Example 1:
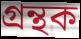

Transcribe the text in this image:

গ্ৰন্থক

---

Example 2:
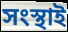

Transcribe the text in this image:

সংস্থাই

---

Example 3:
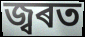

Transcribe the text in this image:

জ্বৰত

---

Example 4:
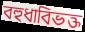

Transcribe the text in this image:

বহুধাবিভক্ত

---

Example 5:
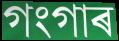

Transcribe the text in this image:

গংগাৰ